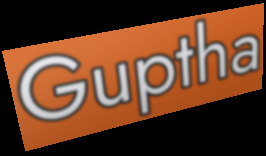
Guptha